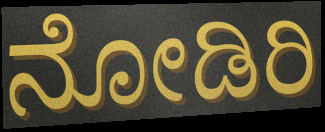
ನೋಡಿರಿ